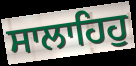
ਸਾਲਾਹਿਹੁ